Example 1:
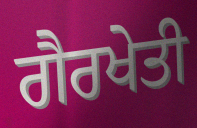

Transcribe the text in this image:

ਗੈਰਖੇਤੀ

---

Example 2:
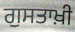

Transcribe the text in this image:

ਗੁਸਤਾਖ਼ੀ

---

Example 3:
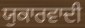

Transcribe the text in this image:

ਯੁਕਾਰਵਾਦੀ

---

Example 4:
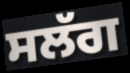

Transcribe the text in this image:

ਸਲੱਗ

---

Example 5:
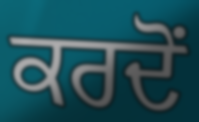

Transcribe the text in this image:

ਕਰਦੋਂ